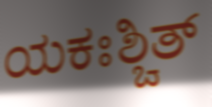
ಯಕಃಶ್ಚಿತ್